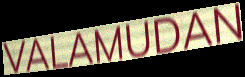
VALAMUDAN